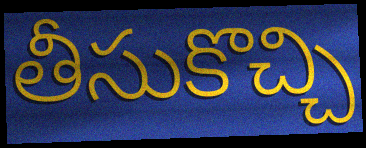
తీసుకొచ్చి